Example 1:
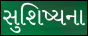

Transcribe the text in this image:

સુશિષ્યના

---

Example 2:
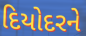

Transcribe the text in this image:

દિયોદરને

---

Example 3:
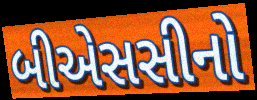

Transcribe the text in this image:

બીએસસીનો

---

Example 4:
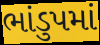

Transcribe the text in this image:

ભાંડુપમાં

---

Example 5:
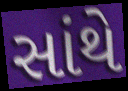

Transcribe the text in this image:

સાંથે